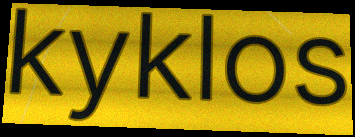
kyklos